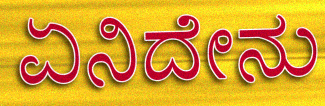
ಏನಿದೇನು